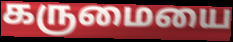
கருமையை